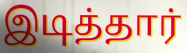
இடித்தார்